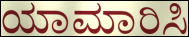
ಯಾಮಾರಿಸಿ